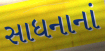
સાધનાનાં